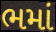
ભમાં